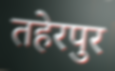
तहेरपुर